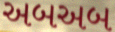
અબઅબ